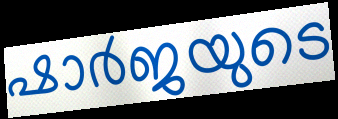
ഷാർജയുടെ